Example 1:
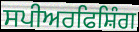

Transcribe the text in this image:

ਸਪੀਅਰਫਿਸ਼ਿੰਗ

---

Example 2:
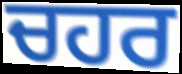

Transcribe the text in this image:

ਚਹਰ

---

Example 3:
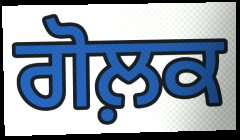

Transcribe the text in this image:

ਗੋਲ਼ਕ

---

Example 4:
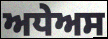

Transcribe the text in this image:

ਅਧੇਅਸ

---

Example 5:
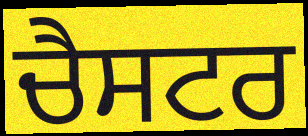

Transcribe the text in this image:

ਚੈਸਟਰ